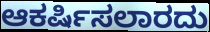
ಆಕರ್ಷಿಸಲಾರದು